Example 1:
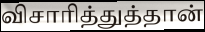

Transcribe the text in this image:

விசாரித்துத்தான்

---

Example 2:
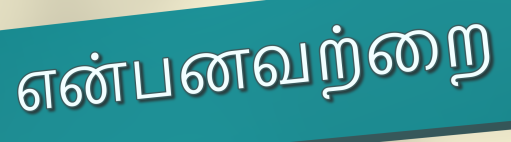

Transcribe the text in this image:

என்பனவற்றை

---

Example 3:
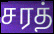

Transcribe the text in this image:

சரத்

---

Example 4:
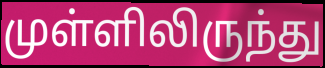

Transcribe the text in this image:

முள்ளிலிருந்து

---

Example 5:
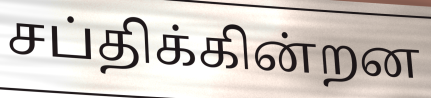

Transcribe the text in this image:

சப்திக்கின்றன